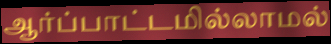
ஆர்ப்பாட்டமில்லாமல்